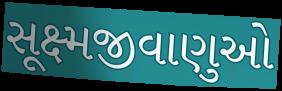
સૂક્ષ્મજીવાણુઓ